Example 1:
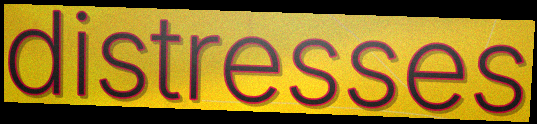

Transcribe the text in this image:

distresses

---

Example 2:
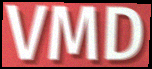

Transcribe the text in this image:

VMD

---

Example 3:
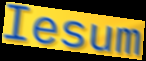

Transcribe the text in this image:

Iesum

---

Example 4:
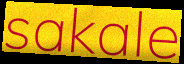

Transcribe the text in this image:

sakale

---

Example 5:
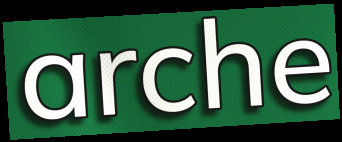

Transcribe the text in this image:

arche